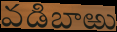
వడిబాఱు